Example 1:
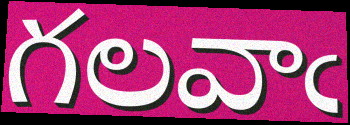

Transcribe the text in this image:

గలవాఁ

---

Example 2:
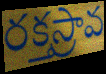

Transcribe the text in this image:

రక్తస్రావ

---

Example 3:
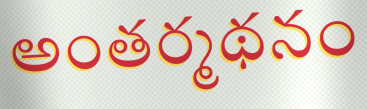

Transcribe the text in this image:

అంతర్మథనం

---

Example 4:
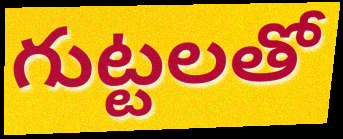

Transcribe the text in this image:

గుట్టలతో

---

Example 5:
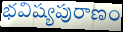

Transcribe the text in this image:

భవిష్యపురాణం